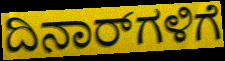
ದಿನಾರ್‌ಗಳಿಗೆ